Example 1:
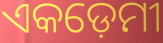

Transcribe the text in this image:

ଏକଡ଼େମୀ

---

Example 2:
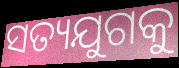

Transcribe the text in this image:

ସତ୍ୟଯୁଗକୁ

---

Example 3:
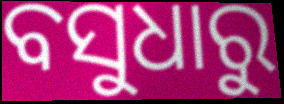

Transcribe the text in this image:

ବସୁଧାରୁ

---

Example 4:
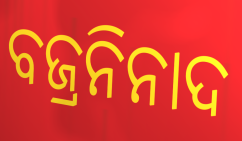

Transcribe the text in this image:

ବଜ୍ରନିନାଦ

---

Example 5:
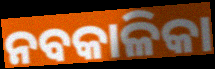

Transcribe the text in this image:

ନବକାଳିକା